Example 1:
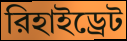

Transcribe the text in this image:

রিহাইড্রেট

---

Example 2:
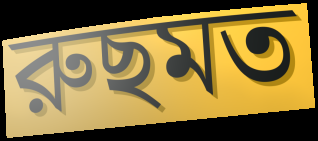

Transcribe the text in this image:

রুছমত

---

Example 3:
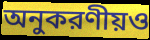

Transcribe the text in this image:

অনুকরণীয়ও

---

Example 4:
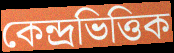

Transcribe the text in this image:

কেন্দ্রভিত্তিক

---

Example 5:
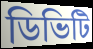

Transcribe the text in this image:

ডিভিটি